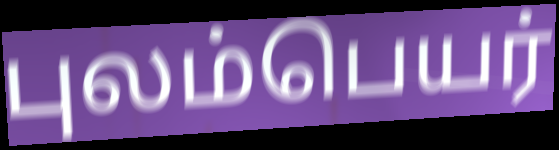
புலம்பெயர்